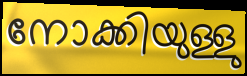
നോക്കിയുള്ളു